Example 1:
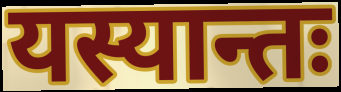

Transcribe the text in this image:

यस्यान्तः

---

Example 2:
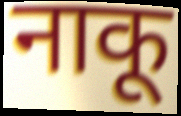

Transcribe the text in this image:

नाकू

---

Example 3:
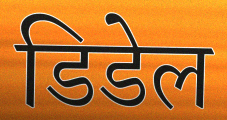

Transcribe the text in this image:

डिडेल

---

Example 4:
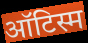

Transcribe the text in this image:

ऑटिस्म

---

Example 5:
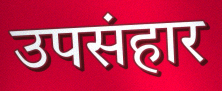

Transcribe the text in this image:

उपसंहार